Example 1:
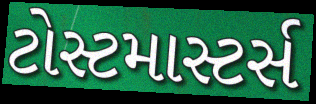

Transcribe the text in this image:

ટોસ્ટમાસ્ટર્સ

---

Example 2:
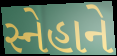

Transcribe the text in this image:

સ્નેહાને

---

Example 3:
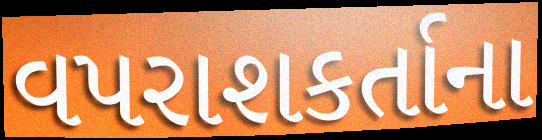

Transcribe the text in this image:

વપરાશકર્તાના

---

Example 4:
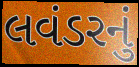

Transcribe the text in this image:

લવંડરનું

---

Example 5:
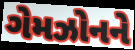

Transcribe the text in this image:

ગેમઝોનને